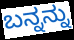
ಬನ್ನನ್ನು